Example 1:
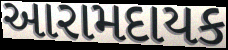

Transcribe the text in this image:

આરામદાયક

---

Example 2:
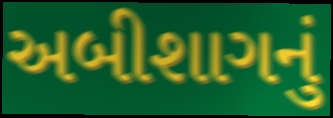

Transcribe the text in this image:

અબીશાગનું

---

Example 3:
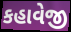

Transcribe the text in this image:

કહાવેજી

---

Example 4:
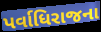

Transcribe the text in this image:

પર્વાધિરાજના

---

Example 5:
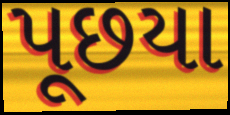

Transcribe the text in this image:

પૂછયા